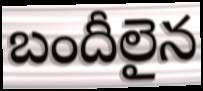
బందీలైన